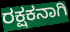
ರಕ್ಷಕನಾಗಿ